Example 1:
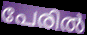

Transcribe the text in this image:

പേരിൽ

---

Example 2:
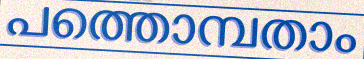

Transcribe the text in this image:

പത്തൊമ്പതാം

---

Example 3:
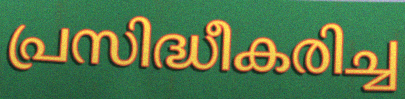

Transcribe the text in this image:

പ്രസിദ്ധീകരിച്ച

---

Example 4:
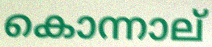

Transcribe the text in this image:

കൊന്നാല്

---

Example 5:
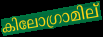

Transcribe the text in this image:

കിലോഗ്രാമില്